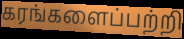
கரங்களைப்பற்றி